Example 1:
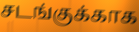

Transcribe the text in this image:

சடங்குக்காக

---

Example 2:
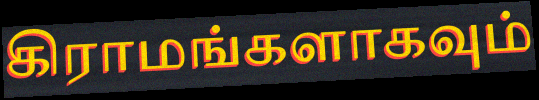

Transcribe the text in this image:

கிராமங்களாகவும்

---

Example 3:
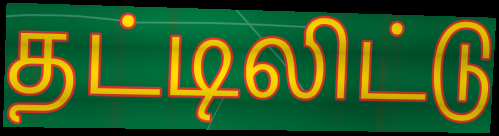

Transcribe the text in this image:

தட்டிலிட்டு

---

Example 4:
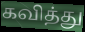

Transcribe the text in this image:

கவித்து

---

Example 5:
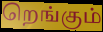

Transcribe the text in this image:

றெங்கும்